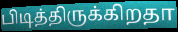
பிடித்திருக்கிறதா